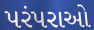
પરંપરાઓ